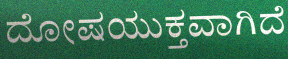
ದೋಷಯುಕ್ತವಾಗಿದೆ